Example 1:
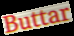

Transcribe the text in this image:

Buttar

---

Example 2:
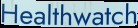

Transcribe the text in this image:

Healthwatch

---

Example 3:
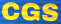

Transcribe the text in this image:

CGS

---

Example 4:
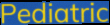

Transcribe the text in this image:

Pediatric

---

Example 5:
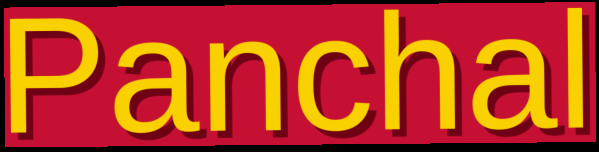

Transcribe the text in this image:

Panchal